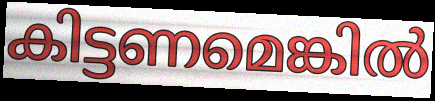
കിട്ടണമെങ്കിൽ